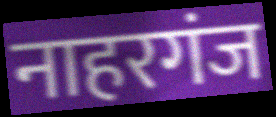
नाहरगंज